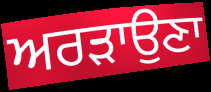
ਅਰੜਾਉਣਾ